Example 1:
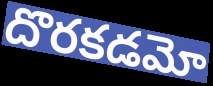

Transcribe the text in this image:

దొరకడమో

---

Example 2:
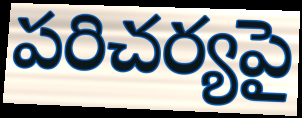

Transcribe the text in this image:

పరిచర్యపై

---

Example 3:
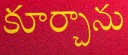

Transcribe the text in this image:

కూర్చాను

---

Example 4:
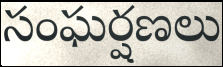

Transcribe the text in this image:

సంఘర్షణలు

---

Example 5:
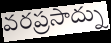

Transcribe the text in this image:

వరప్రసాద్ను